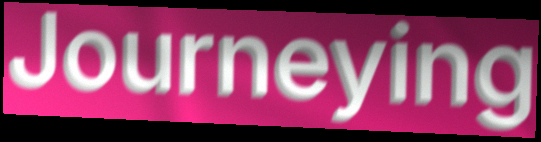
Journeying